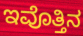
ಇವೊತ್ತಿನ